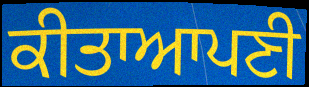
ਕੀਤਾਆਪਣੀ